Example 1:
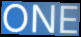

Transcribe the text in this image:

ONE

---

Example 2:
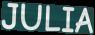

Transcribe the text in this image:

JULIA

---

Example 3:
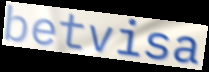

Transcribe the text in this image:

betvisa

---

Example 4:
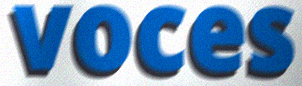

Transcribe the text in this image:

voces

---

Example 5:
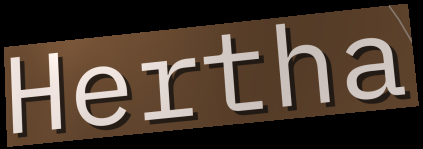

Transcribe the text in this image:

Hertha